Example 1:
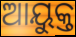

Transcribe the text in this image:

ଆୟୁକ୍ତ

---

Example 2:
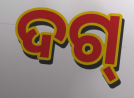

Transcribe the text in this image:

ଦଗ୍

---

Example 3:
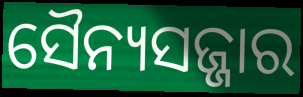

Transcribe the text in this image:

ସୈନ୍ୟସଜ୍ଜାର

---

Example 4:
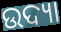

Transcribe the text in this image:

ଉଦ୍ୟା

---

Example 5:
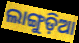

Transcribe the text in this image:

ଲାଙ୍ଗୁଡ଼ିଆ